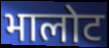
भालोट